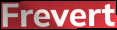
Frevert